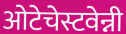
ओटेचेस्टवेन्नी